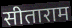
सीताराम